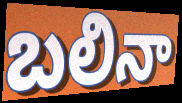
బలినా